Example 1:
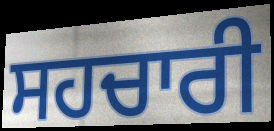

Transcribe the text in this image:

ਸਹਚਾਰੀ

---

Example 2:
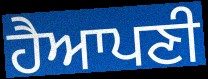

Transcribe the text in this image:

ਹੈਆਪਣੀ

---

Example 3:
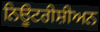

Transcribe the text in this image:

ਨਿਊਟਰੀਸ਼ੀਅਨ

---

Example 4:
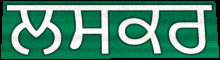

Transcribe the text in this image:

ਲਸਕਰ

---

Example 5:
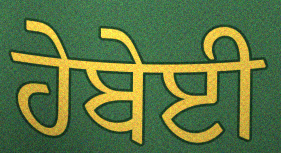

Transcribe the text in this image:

ਹੇਬੇਈ